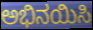
ಅಭಿನಯಿಸಿ